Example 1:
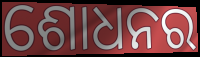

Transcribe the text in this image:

ଶୋଧନର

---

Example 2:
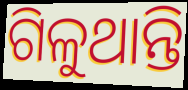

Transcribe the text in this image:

ଗିଳୁଥାନ୍ତି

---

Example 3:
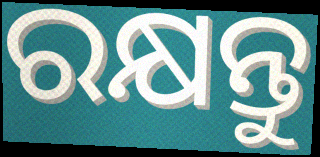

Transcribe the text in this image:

ରକ୍ଷନ୍ତୁ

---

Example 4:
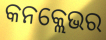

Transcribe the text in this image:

କନକ୍ଲେଭର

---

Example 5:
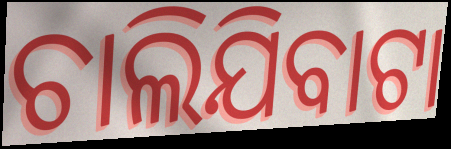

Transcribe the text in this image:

ଚାଲିଯିବାଟା